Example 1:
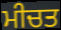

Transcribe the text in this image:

ਮੀਚਤ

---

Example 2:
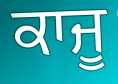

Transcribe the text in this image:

ਕਾਜੂ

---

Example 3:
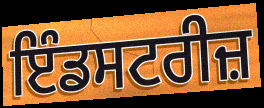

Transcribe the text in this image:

ਇੰਡਸਟਰੀਜ਼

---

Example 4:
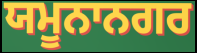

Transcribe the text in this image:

ਯਮੂਨਾਨਗਰ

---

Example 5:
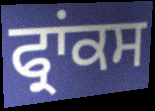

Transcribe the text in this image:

ਫ੍ਰਾਂਕਸ